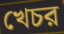
খেচর